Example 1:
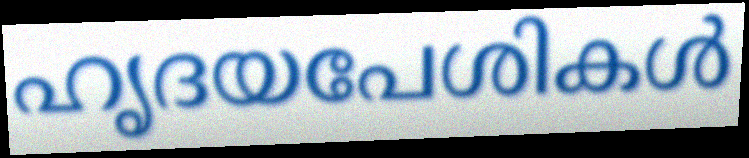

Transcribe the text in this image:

ഹൃദയപേശികൾ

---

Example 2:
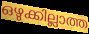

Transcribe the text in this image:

ഒഴുക്കില്ലാത്ത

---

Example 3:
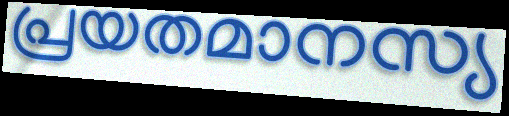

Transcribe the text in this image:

പ്രയതമാനസ്യ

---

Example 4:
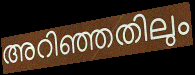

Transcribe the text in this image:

അറിഞ്ഞതിലും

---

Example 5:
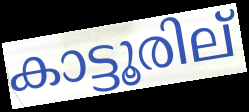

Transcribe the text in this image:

കാട്ടൂരില്